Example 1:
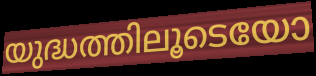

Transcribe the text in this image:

യുദ്ധത്തിലൂടെയോ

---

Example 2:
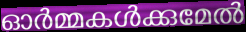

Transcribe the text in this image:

ഓർമ്മകൾക്കുമേൽ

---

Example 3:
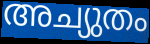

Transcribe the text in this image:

അച്യുതം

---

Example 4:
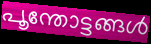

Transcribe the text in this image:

പൂന്തോട്ടങ്ങൾ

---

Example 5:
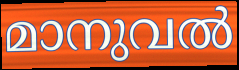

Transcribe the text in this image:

മാനുവൽ